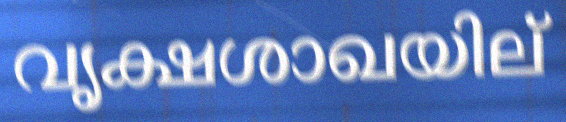
വൃക്ഷശാഖയില്